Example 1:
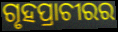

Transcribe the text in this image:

ଗୃହପ୍ରାଚୀରର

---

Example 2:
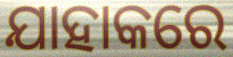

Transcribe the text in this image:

ଯାହାକରେ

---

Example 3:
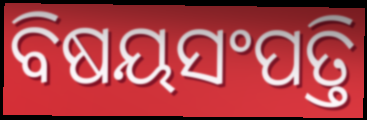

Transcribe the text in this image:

ବିଷୟସଂପତ୍ତି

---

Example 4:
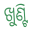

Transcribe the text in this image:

ଖୁଣ୍ଟି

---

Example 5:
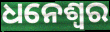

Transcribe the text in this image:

ଧନେଶ୍ବର